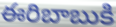
ఈరిబాబుకి